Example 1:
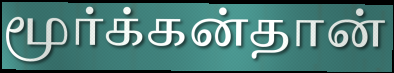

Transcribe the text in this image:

மூர்க்கன்தான்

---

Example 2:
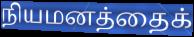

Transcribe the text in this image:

நியமனத்தைக்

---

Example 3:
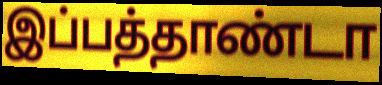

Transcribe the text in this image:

இப்பத்தாண்டா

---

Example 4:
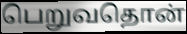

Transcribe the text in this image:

பெறுவதொன்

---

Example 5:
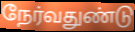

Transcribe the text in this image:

நேர்வதுண்டு